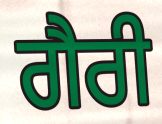
ਗੈਰੀ